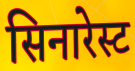
सिनारेस्ट